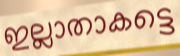
ഇല്ലാതാകട്ടെ